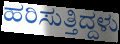
ಹರಿಸುತ್ತಿದ್ದಳು